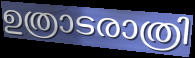
ഉത്രാടരാത്രി